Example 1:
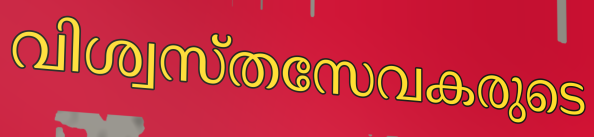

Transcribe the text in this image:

വിശ്വസ്തസേവകരുടെ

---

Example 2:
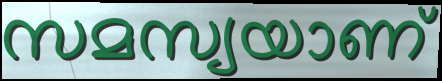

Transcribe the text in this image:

സമസ്യയാണ്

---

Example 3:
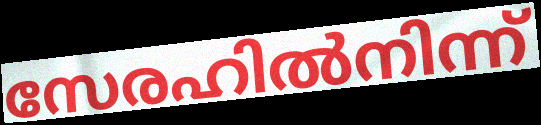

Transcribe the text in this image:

സേരഹിൽനിന്ന്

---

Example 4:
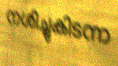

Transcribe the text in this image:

നശിച്ചുകിടന്ന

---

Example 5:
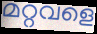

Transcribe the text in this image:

മറ്റവളെ